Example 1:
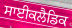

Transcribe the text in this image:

ਸਾਈਕਲੈਡਿਕ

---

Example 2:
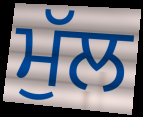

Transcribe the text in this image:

ਮੁੱਲ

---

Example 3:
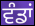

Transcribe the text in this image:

ਵੰਡਾਂ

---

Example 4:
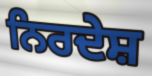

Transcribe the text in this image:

ਨਿਰਦੇਸ਼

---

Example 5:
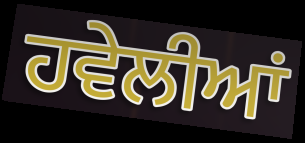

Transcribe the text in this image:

ਹਵੇਲੀਆਂ